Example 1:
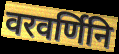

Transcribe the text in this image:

वरवर्णिनि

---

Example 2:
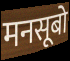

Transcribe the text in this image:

मनसूबो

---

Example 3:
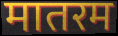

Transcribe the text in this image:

मातरम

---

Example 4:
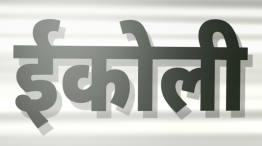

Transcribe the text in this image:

ईकोली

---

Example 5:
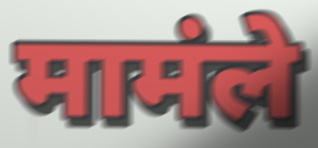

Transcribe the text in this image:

मामंले